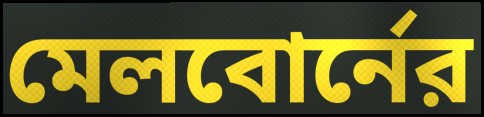
মেলবোর্নের